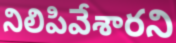
నిలిపివేశారని